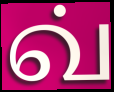
வ்